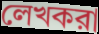
লেখকরা